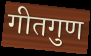
गीतगुण